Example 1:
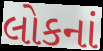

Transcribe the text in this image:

લોકનાં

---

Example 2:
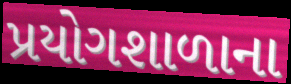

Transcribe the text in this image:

પ્રયોગશાળાના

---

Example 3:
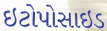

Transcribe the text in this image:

ઇટોપોસાઇડ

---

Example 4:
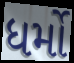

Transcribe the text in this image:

ધર્મો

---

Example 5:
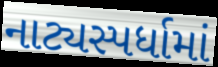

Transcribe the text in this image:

નાટ્યસ્પર્ધામાં